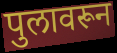
पुलावरून